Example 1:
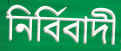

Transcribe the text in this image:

নির্বিবাদী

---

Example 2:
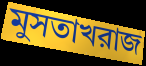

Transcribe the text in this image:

মুসতাখরাজ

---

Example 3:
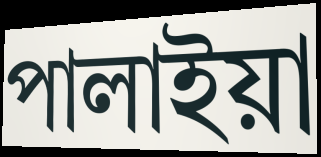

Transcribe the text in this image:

পালাইয়া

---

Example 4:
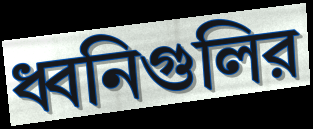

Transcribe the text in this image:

ধ্বনিগুলির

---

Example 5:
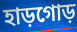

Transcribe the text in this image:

হাড়গোড়